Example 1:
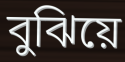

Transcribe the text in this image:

বুঝিয়ে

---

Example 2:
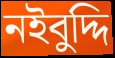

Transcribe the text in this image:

নইবুদ্দি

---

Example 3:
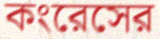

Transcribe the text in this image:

কংরেসের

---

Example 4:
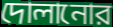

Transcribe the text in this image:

দোলানোর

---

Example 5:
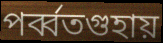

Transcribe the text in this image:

পর্ব্বতগুহায়